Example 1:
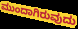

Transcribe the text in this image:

ಮುಂದಾಗಿರುವುದು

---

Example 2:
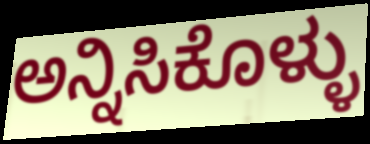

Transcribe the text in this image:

ಅನ್ನಿಸಿಕೊಳ್ಳು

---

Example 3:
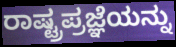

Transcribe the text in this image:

ರಾಷ್ಟ್ರಪ್ರಜ್ಞೆಯನ್ನು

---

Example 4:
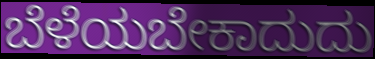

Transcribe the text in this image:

ಬೆಳೆಯಬೇಕಾದುದು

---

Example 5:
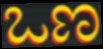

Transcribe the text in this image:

ಒಣ